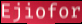
Ejiofor